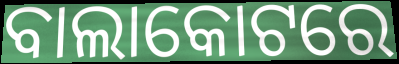
ବାଲାକୋଟରେ